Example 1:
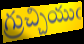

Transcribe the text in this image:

గ్రుచ్చియుఁ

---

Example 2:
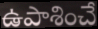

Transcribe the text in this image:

ఉపాశించే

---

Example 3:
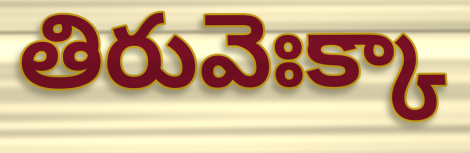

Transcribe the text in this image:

తిరువెఃక్కా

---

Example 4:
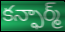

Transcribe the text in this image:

కన్ఫార్మ్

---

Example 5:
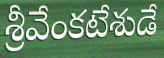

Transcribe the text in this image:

శ్రీవేంకటేశుడే